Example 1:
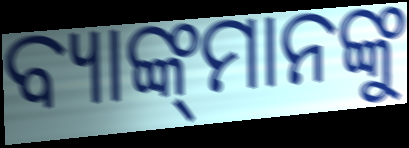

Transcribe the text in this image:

ବ୍ୟାଙ୍କ୍‌ମାନଙ୍କୁ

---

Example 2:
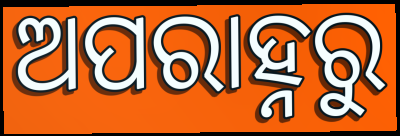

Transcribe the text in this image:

ଅପରାହ୍ନରୁ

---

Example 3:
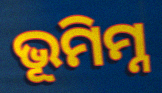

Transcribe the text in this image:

ଭୂମିମ୍ନ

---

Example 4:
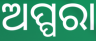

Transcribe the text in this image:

ଅପ୍ପରା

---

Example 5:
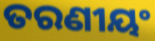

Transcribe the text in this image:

ତରଣୀୟଂ